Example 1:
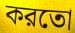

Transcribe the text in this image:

করতো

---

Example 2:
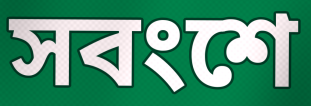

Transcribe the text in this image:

সবংশে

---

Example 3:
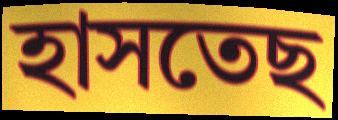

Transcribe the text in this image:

হাসতেছ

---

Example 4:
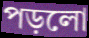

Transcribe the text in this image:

পড়লো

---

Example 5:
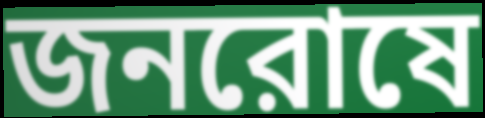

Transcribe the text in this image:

জনরোষে